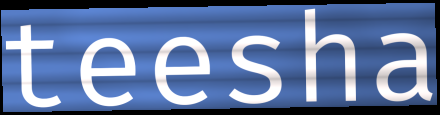
teesha